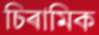
চিৰামিক